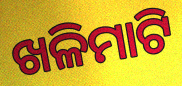
ଖଳିମାଟି